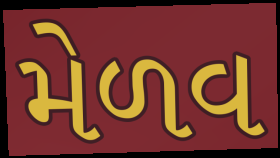
મેળવ